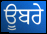
ਊਬਰੇ